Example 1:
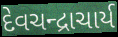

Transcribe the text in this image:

દેવચન્દ્રાચાર્ય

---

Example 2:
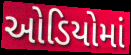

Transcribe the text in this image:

ઓડિયોમાં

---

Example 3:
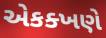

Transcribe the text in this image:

એકક્ખણે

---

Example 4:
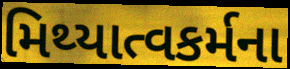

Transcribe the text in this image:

મિથ્યાત્વકર્મના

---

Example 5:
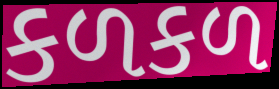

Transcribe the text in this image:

કળકળ